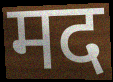
मद